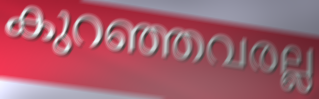
കുറഞ്ഞവരല്ല